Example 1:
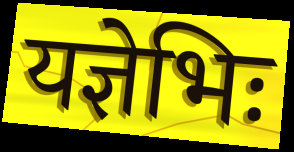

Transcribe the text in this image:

यज्ञेभिः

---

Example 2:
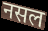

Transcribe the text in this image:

नसल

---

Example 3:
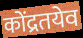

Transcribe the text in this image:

कोंद्रतयेव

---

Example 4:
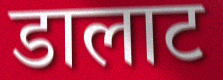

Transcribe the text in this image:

डालाट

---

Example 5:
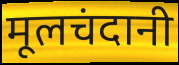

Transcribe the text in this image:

मूलचंदानी